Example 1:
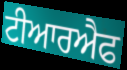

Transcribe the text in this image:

ਟੀਆਰਐਫ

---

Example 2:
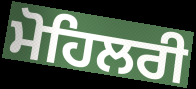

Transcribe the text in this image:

ਮੋਹਿਲਰੀ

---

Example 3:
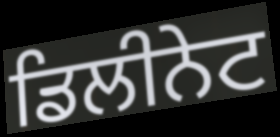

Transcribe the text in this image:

ਡਿਲੀਨੇਟ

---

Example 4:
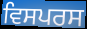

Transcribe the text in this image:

ਵਿਸਪਰਸ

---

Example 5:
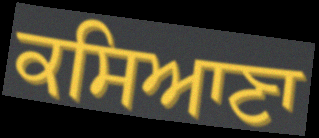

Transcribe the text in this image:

ਕਸਿਆਣਾ